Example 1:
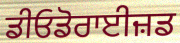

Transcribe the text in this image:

ਡੀਓਡੋਰਾਈਜ਼ਡ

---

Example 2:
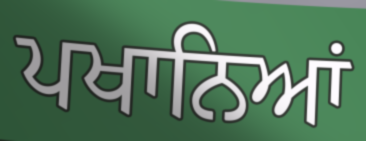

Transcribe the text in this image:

ਪਖਾਨਿਆਂ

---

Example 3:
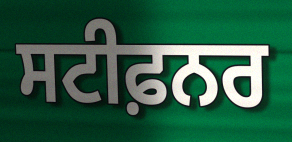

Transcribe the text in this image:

ਸਟੀਫ਼ਨਰ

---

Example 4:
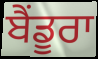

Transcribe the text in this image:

ਬੈਂਡੂਰਾ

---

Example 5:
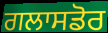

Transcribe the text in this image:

ਗਲਾਸਡੋਰ